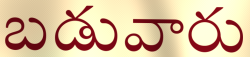
బడువారు